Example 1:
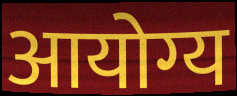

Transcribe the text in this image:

आयोग्य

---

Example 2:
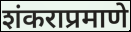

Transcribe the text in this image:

शंकराप्रमाणे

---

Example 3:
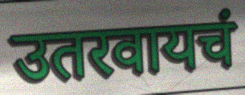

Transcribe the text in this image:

उतरवायचं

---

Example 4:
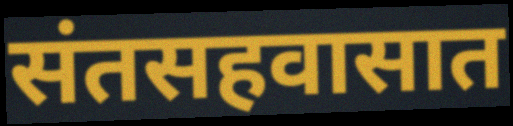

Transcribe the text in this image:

संतसहवासात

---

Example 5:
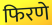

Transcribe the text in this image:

फिरणे